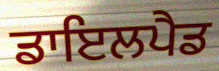
ਡਾਇਲਪੈਡ